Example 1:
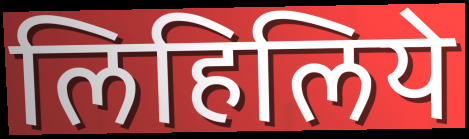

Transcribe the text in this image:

लिहिलिये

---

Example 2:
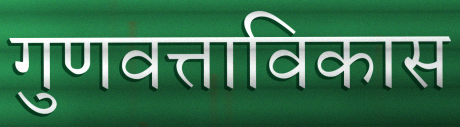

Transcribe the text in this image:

गुणवत्ताविकास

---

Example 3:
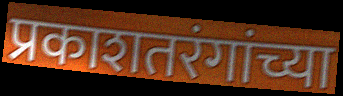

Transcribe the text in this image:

प्रकाशतरंगांच्या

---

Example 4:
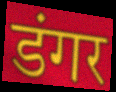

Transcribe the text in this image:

डंगर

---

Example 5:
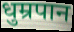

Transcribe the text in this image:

धुम्रपान